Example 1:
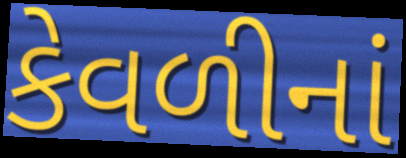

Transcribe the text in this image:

કેવળીનાં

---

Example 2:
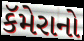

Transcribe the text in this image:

કૅમેરાનો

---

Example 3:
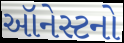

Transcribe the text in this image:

ઑનેસ્ટનો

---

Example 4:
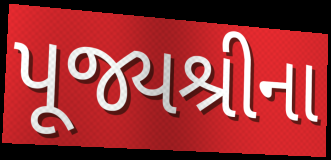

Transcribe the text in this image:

પૂજ્યશ્રીના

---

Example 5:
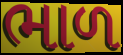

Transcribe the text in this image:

ભાળ